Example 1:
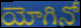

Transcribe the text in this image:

యోగినో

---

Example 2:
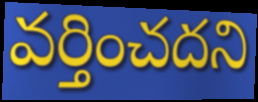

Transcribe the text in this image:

వర్తించదని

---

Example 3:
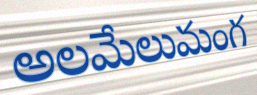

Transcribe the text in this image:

అలమేలుమంగ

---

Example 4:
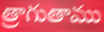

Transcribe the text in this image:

త్రాగుతాము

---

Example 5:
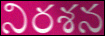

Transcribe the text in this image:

నిరశన